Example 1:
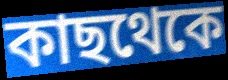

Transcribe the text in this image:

কাছথেকে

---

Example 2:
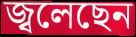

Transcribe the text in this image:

জ্বলেছেন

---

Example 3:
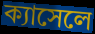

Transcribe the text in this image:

ক্যাসেলে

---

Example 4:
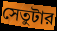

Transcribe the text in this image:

সেতুটার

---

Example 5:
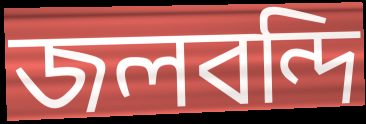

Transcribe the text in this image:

জলবন্দি